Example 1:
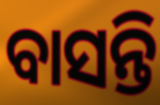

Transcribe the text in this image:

ବାସନ୍ତି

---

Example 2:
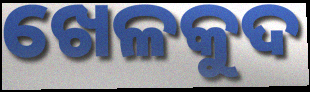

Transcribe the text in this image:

ଖେଳକୁଦ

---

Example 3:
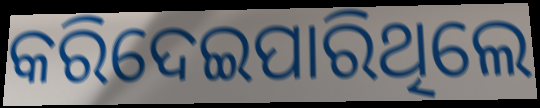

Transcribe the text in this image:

କରିଦେଇପାରିଥିଲେ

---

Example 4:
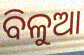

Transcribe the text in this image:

ବିଳୁଆ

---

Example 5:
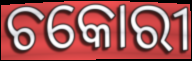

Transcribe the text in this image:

ଚକୋରୀ